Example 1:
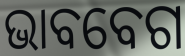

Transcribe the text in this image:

ଭାବବେଗ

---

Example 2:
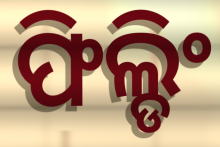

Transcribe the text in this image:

ଫିଲ୍ଡିଂ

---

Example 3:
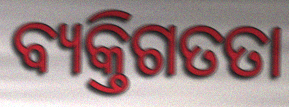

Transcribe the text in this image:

ବ୍ୟକ୍ତିଗତତା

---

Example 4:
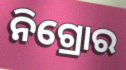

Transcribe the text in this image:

ନିଗ୍ରୋର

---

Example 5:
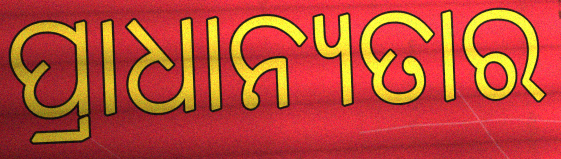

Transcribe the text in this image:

ପ୍ରାଧାନ୍ୟତାର